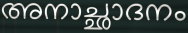
അനാച്ഛാദനം